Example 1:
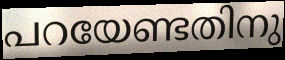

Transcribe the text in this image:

പറയേണ്ടതിനു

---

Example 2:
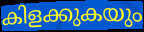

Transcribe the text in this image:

കിളക്കുകയും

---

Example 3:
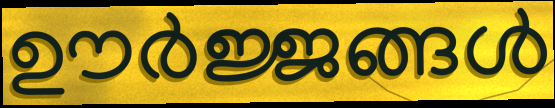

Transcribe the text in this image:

ഊർജ്ജങ്ങൾ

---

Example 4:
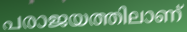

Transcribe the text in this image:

പരാജയത്തിലാണ്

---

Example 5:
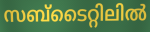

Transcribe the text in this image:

സബ്ടൈറ്റിലിൽ